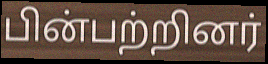
பின்பற்றினர்